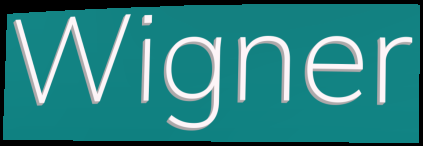
Wigner